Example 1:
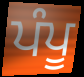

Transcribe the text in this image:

ਪੰਪੂ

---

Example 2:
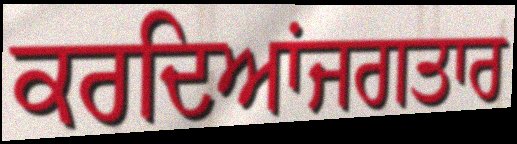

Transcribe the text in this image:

ਕਰਦਿਆਂਜਗਤਾਰ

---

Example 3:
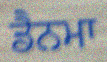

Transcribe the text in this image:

ਡੈਨਮਾ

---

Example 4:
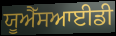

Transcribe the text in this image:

ਯੂਐੱਸਆਈਡੀ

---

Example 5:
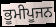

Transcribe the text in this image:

ਭੂਮੀਪੂਜਨ